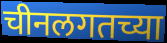
चीनलगतच्या